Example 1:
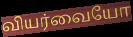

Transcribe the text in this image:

வியர்வையோ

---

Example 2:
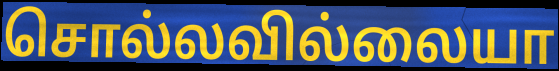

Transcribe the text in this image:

சொல்லவில்லையா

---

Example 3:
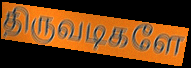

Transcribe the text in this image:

திருவடிகளே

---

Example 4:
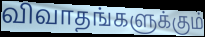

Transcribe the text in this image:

விவாதங்களுக்கும்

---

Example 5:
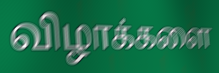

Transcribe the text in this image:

விழாக்களை